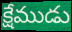
క్షేముడు